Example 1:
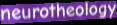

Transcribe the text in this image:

neurotheology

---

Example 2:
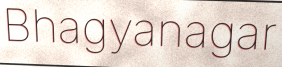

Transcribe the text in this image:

Bhagyanagar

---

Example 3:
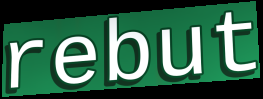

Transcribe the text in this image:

rebut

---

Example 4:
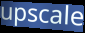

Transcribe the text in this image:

upscale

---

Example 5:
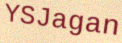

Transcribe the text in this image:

YSJagan